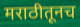
मराठीतूनच